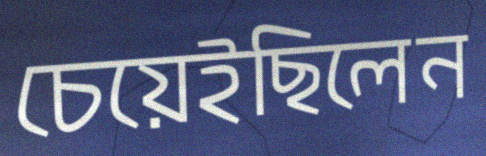
চেয়েইছিলেন